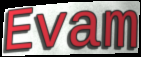
Evam